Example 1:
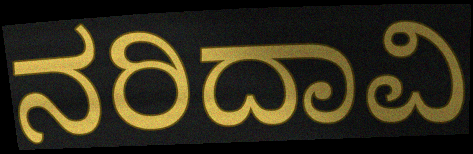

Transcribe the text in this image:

ನರಿದಾವಿ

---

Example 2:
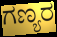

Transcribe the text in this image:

ಗಣ್ಯರ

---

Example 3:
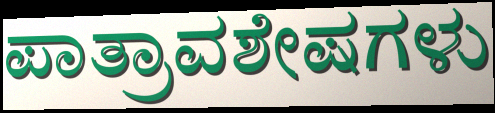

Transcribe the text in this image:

ಪಾತ್ರಾವಶೇಷಗಳು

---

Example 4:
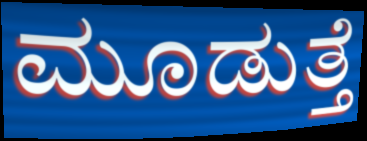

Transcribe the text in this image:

ಮೂಡುತ್ತೆ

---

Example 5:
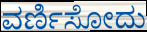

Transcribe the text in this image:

ವರ್ಣಿಸೋದು